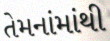
તેમનાંમાંથી